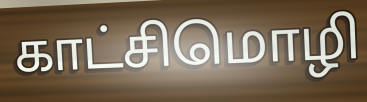
காட்சிமொழி